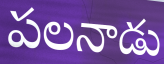
పలనాడు